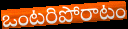
ఒంటరిపోరాటం